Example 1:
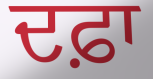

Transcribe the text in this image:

ਦਫ਼ਾ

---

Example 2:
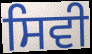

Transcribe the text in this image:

ਸਿਵੀ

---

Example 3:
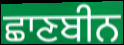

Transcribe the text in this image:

ਛਾਣਬੀਨ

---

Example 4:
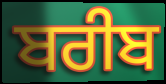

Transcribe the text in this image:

ਬਰੀਬ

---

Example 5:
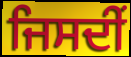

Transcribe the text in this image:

ਜਿਸਦੀਂ